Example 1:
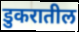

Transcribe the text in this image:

डुकरातील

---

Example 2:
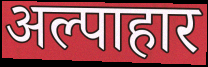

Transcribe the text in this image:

अल्पाहार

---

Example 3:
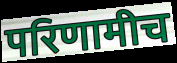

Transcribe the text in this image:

परिणामीच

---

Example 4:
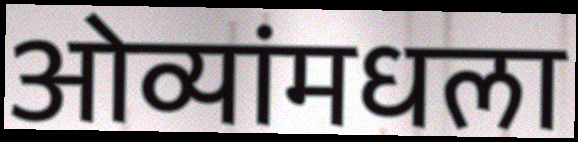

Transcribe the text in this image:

ओव्यांमधला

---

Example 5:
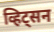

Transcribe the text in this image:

व्हिट्सन